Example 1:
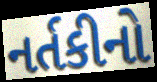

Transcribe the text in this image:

નર્તકીનો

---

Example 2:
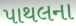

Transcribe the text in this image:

પાથલના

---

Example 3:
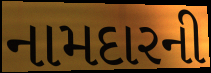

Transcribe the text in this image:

નામદારની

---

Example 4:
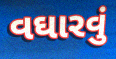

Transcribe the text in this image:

વઘારવું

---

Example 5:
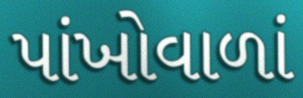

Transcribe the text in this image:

પાંખોવાળાં